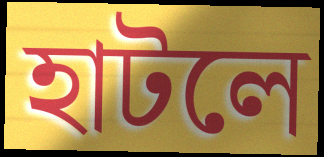
হাটলে